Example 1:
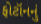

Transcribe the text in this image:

ફોટૉનનું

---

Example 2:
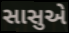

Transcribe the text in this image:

સાસુએ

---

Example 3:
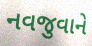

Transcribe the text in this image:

નવજુવાને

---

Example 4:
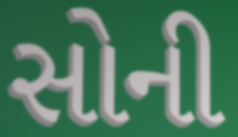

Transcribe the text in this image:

સોની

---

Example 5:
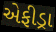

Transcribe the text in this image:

એફીડ્રા